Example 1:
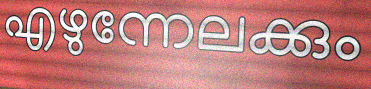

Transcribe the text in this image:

എഴുന്നേലക്കും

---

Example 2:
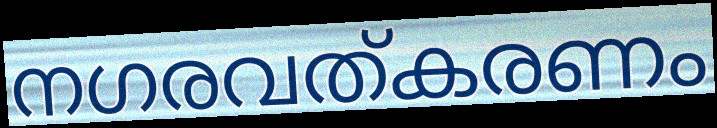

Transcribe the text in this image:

നഗരവത്കരണം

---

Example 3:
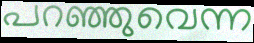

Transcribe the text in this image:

പറഞ്ഞുവെന്ന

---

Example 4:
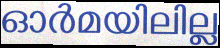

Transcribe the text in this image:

ഓർമയിലില്ല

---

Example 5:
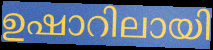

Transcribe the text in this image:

ഉഷാറിലായി